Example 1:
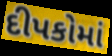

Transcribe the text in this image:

દીપકોમાં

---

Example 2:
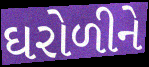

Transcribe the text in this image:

ઘરોળીને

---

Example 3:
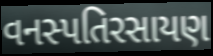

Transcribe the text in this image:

વનસ્પતિરસાયણ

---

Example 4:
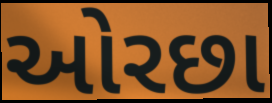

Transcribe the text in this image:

ઓરછા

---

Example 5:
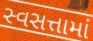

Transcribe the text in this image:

સ્વસત્તામાં